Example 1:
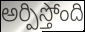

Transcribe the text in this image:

అర్పిస్తోంది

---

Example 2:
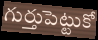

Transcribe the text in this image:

గుర్తుపెట్టుకో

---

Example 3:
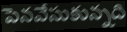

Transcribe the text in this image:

పెనవేసుకున్నది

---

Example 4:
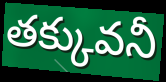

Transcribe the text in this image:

తక్కువనీ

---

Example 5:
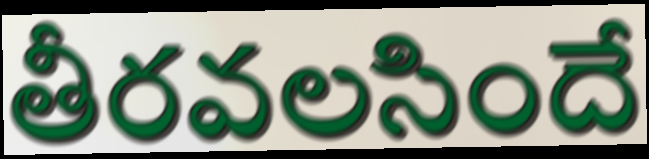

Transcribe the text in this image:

తీరవలసిందే